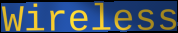
Wireless